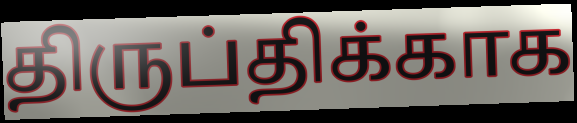
திருப்திக்காக